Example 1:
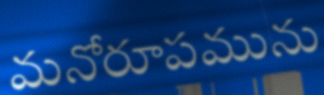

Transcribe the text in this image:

మనోరూపమును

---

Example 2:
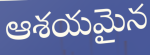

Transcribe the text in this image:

ఆశయమైన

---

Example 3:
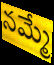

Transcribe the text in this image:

నమ్మే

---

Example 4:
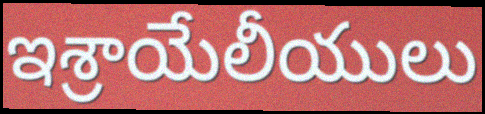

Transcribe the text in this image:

ఇశ్రాయేలీయులు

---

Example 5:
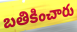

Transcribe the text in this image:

బతికించారు